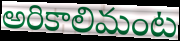
అరికాలిమంట